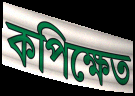
কপিক্ষেত